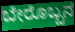
ಬೇರೊಬ್ಬನ